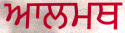
ਆਲਮਥ